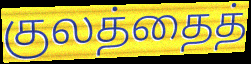
குலத்தைத்